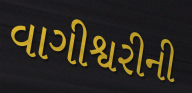
વાગીશ્વરીની